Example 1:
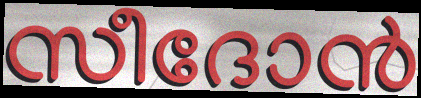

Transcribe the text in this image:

സീദോൻ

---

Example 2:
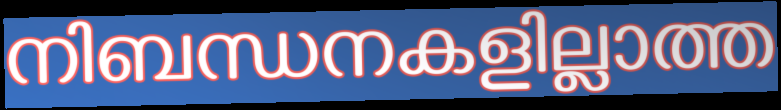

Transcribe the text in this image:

നിബന്ധനകളില്ലാത്ത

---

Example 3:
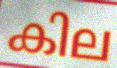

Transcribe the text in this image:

കില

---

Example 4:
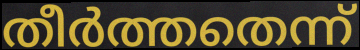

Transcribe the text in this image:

തീർത്തതെന്ന്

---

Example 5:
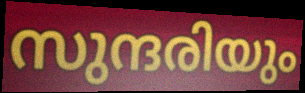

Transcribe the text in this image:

സുന്ദരിയും